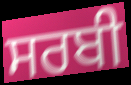
ਸਰਬੀ